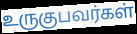
உருகுபவர்கள்